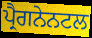
ਪ੍ਰੈਗਨੇਨਟਲ